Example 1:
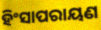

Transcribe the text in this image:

ହିଂସାପରାୟଣ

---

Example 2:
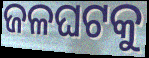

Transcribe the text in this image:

ଜଳଘଟକୁ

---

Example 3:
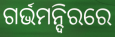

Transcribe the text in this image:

ଗର୍ଭମନ୍ଦିରରେ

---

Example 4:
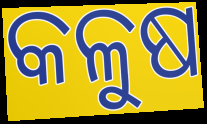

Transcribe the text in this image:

କଳୁଷ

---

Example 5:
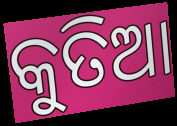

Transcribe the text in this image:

କୁତିଆ